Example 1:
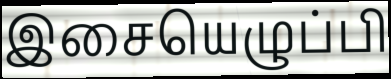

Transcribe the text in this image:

இசையெழுப்பி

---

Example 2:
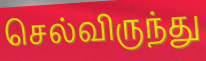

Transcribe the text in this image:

செல்விருந்து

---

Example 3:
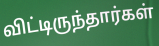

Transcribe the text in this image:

விட்டிருந்தார்கள்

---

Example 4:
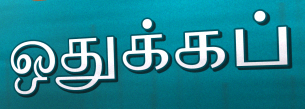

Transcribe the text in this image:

ஒதுக்கப்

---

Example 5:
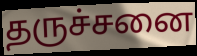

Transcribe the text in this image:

தருச்சனை